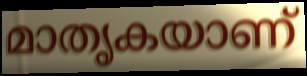
മാതൃകയാണ്